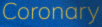
Coronary